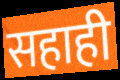
सहाही